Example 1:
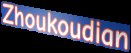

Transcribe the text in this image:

Zhoukoudian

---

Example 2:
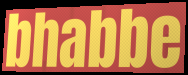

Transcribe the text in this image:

bhabbe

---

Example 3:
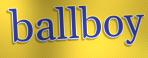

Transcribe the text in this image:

ballboy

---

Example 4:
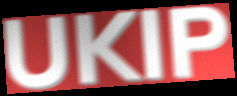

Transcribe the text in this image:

UKIP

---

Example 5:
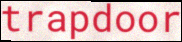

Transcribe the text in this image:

trapdoor